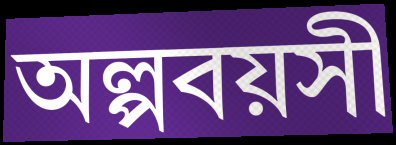
অল্পবয়সী